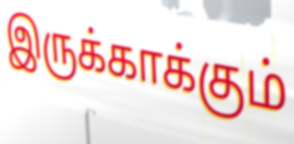
இருக்காக்கும்